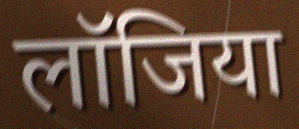
लॉजिया